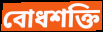
বোধশক্তি